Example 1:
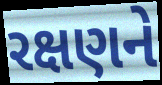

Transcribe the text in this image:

રક્ષણને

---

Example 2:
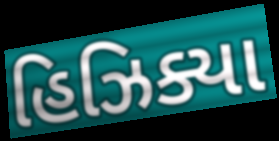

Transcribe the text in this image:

હિઝિક્યા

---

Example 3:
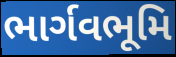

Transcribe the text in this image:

ભાર્ગવભૂમિ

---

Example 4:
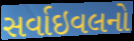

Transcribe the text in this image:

સર્વાઇવલનો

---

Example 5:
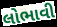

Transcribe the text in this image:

લોભાવી